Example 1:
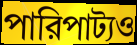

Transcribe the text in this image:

পারিপাট্যও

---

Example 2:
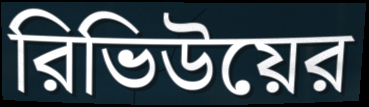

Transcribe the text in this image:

রিভিউয়ের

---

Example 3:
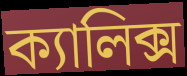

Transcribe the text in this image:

ক্যালিক্স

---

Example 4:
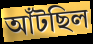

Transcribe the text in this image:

আঁটছিল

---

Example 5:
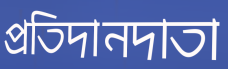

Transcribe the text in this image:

প্রতিদানদাতা